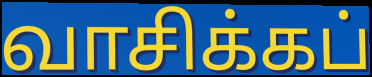
வாசிக்கப்